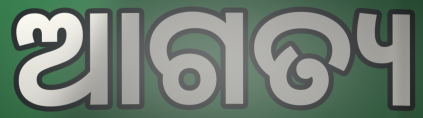
ଆଗତ୍ୟ